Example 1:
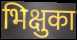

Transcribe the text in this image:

भिक्षुका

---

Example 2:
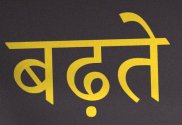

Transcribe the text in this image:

बढ़ते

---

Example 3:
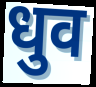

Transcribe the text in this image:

धुव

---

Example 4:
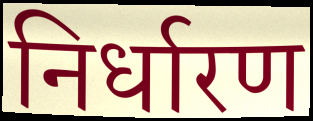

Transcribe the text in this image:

निर्धारण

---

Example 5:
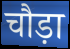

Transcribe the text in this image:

चौड़ा